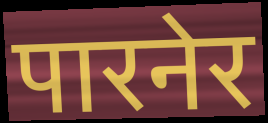
पारनेर